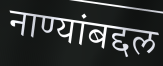
नाण्यांबद्दल